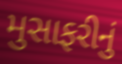
મુસાફરીનું